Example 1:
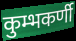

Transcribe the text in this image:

कुम्भकर्णी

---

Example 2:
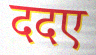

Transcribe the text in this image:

ददए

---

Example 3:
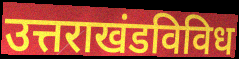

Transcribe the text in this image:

उत्तराखंडविविध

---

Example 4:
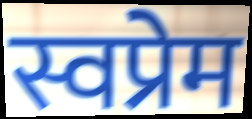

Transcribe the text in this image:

स्वप्रेम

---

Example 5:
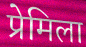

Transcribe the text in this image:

प्रेमिला